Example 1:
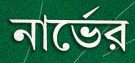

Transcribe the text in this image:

নার্ভের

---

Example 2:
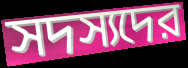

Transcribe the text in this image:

সদস্যদের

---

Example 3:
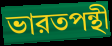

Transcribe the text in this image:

ভারতপন্থী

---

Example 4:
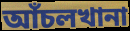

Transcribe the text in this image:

আঁচলখানা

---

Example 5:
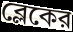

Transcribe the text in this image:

ব্লেকের